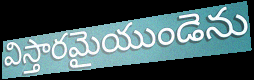
విస్తారమైయుండెను